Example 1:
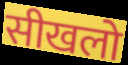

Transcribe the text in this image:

सीखलो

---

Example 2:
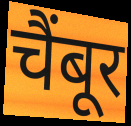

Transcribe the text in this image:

चैंबूर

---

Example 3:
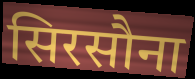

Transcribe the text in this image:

सिरसौना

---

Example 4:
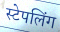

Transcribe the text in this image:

स्टेपलिंग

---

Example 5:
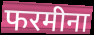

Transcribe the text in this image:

फरमीना